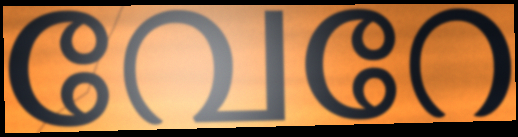
വേറേ